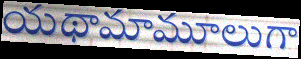
యథామామూలుగా